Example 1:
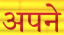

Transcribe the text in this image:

अपने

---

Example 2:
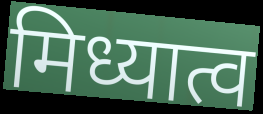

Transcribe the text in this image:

मिध्यात्व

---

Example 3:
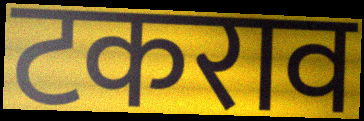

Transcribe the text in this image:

टकराव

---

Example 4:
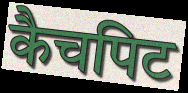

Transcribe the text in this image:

कैचपिट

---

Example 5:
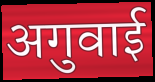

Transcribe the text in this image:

अगुवाई